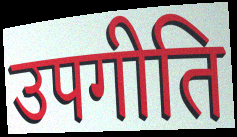
उपगीति